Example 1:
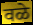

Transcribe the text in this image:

वळे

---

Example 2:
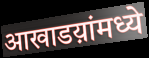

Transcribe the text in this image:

आखाडय़ांमध्ये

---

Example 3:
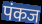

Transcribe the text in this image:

पंकज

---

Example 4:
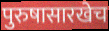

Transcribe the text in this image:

पुरुषासारखेच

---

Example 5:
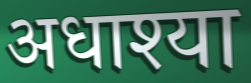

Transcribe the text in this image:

अधाश्या